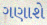
ગણાશે